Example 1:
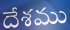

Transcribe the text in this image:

దేశము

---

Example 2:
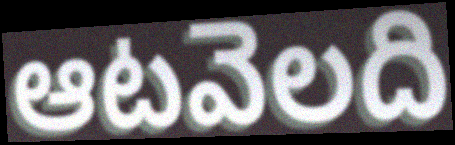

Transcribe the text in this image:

ఆటవెలది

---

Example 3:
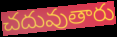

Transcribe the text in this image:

చదువుతారు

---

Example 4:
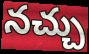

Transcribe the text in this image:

నచ్చు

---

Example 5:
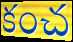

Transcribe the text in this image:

కంచ